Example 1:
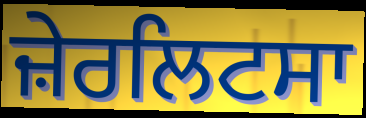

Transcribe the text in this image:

ਜ਼ੇਰਲਿਟਸਾ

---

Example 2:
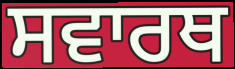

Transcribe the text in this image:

ਸਵਾਰਥ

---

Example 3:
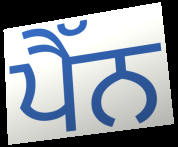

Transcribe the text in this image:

ਪੈੱਨ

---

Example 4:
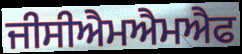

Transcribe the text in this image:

ਜੀਸੀਐਮਐਮਐਫ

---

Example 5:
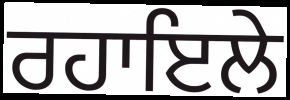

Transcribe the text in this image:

ਰਹਾਇਲੇ